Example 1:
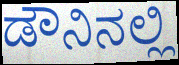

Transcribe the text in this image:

ಡೌನಿನಲ್ಲಿ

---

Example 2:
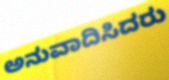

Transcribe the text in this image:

ಅನುವಾದಿಸಿದರು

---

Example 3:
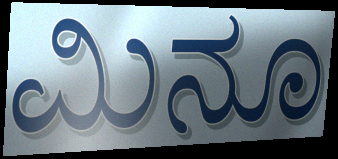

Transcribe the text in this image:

ಮಿನೂ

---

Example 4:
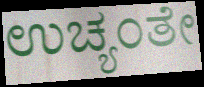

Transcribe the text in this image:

ಉಚ್ಯಂತೇ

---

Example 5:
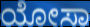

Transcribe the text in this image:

ಯೋಸಾ